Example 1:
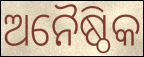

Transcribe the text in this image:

ଅନୈଷ୍ଠିକ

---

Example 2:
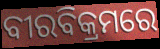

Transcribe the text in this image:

ବୀରବିକ୍ରମରେ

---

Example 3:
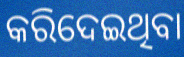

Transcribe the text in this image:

କରିଦେଇଥିବା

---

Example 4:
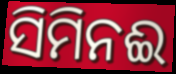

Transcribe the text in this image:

ସିମିନଈ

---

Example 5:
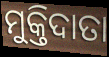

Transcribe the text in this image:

ମୁକ୍ତିଦାତା